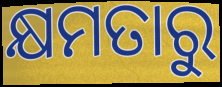
କ୍ଷମତାରୁ